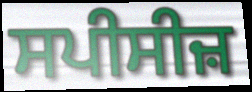
ਸਪੀਸੀਜ਼